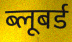
ब्लूबर्ड